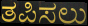
ತಪಿಸಲು